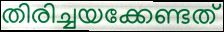
തിരിച്ചയക്കേണ്ടത്